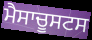
ਮੈਸਾਚੂਸਟਸ